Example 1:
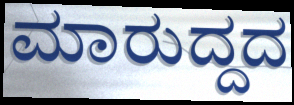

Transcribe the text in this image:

ಮಾರುದ್ದದ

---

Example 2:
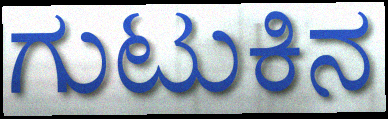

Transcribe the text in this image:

ಗುಟುಕಿನ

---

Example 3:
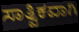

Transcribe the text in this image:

ಸಾತ್ವಿಕವಾಗಿ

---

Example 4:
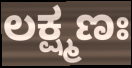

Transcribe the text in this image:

ಲಕ್ಷ್ಮಣಃ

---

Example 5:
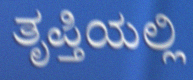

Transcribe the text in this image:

ತೃಪ್ತಿಯಲ್ಲಿ